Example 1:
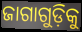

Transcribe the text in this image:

ଜାଗାଗୁଡ଼ିକୁ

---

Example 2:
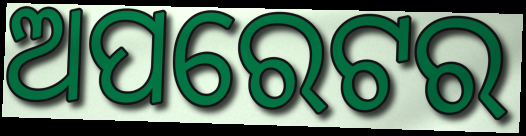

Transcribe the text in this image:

ଅପରେଟର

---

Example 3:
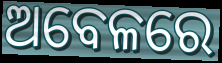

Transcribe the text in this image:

ଅବେଳରେ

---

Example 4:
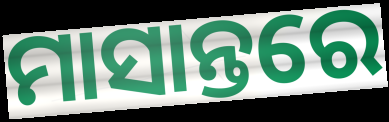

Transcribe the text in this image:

ମାସାନ୍ତରେ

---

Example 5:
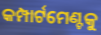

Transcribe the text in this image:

କମ୍ପାର୍ଟମେଣ୍ଟକୁ